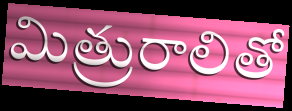
మిత్రురాలితో